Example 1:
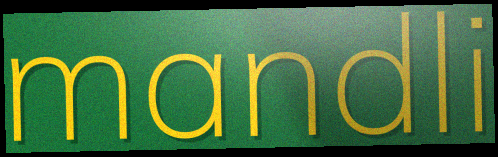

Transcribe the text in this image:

mandli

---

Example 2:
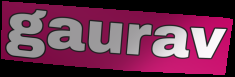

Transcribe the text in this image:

gaurav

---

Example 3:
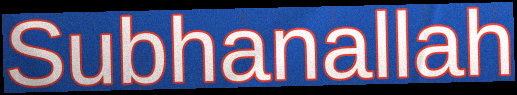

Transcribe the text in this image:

Subhanallah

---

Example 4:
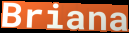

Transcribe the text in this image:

Briana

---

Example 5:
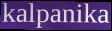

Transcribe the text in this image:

kalpanika